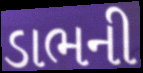
ડાભની